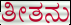
ತೀತನು